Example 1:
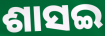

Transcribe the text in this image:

ଶାସଇ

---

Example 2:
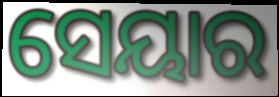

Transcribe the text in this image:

ସେୟାର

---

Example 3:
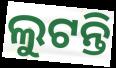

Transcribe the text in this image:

ଲୁଟନ୍ତି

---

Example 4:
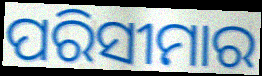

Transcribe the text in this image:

ପରିସୀମାର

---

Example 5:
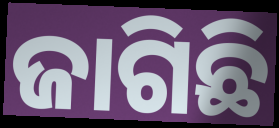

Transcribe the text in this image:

ଜାଗିଛି